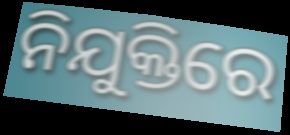
ନିଯୁକ୍ତିରେ